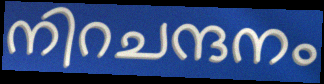
നിറചന്ദനം